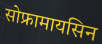
सोफ्रामायसिन